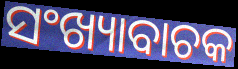
ସଂଖ୍ୟାବାଚକ